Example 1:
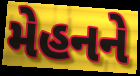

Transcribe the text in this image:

મેહનને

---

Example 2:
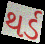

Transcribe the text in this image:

થર્ડ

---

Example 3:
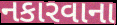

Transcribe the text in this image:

નકારવાના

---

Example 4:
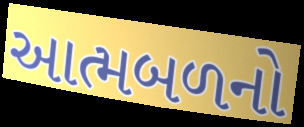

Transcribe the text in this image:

આત્મબળનો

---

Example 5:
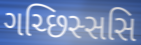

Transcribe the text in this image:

ગચ્છિસ્સસિ